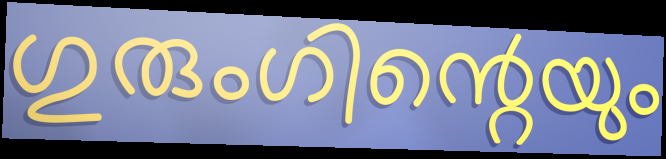
ഗുരുംഗിന്റെയും